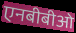
एनबीबीओ